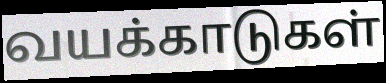
வயக்காடுகள்